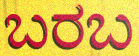
ಬರಬ